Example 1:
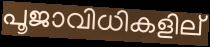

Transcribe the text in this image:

പൂജാവിധികളില്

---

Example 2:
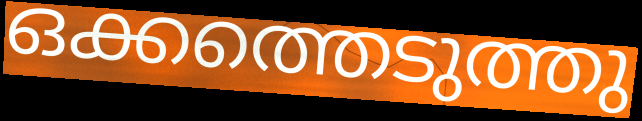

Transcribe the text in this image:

ഒക്കത്തെടുത്തു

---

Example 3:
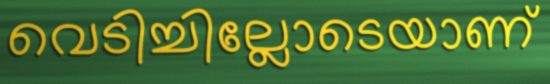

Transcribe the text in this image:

വെടിച്ചില്ലോടെയാണ്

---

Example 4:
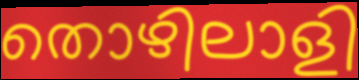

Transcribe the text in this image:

തൊഴിലാളി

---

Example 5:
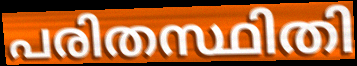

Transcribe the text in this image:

പരിതസ്ഥിതി